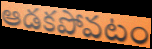
ఆడకపోవటం